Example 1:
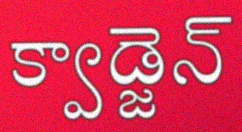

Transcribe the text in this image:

క్వాడ్జెన్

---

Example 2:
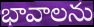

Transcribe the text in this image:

భావాలను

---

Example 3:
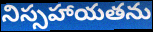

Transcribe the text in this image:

నిస్సహాయతను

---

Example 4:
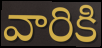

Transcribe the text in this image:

వారికి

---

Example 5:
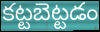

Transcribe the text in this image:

కట్టబెట్టడం